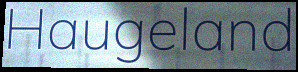
Haugeland